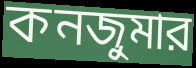
কনজুমার